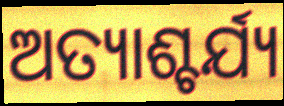
ଅତ୍ୟାଶ୍ଚର୍ଯ୍ୟ